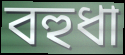
বহুধা